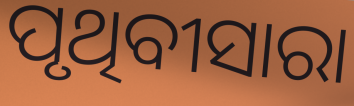
ପୃଥିବୀସାରା